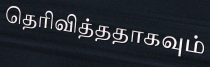
தெரிவித்ததாகவும்